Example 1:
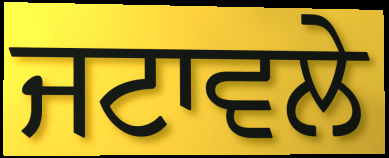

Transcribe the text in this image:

ਜਟਾਵਲੇ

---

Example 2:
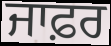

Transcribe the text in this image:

ਜਾਫ਼ਰ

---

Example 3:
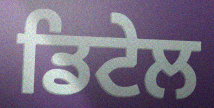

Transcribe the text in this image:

ਡਿਟੇਲ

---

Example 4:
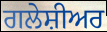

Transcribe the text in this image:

ਗਲੇਸ਼ੀਅਰ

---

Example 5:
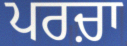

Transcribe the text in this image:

ਪਰਚ਼ਾ